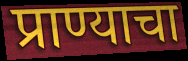
प्राण्याचा